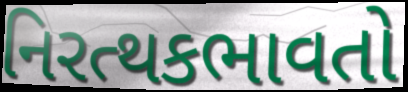
નિરત્થકભાવતો